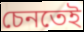
চেনতেই